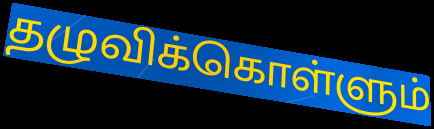
தழுவிக்கொள்ளும்